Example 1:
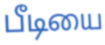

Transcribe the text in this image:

பீடியை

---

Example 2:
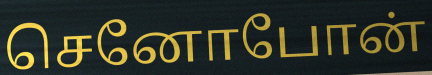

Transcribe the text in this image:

செனோபோன்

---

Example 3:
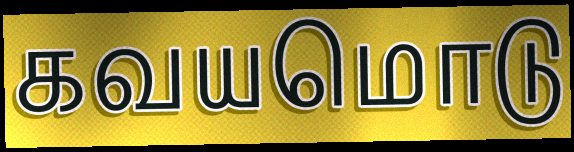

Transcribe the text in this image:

கவயமொடு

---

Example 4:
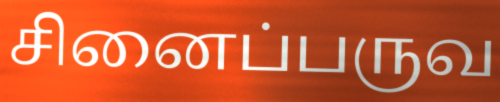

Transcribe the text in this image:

சினைப்பருவ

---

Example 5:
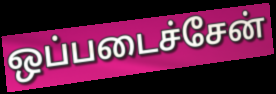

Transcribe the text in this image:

ஒப்படைச்சேன்